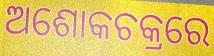
ଅଶୋକଚକ୍ରରେ